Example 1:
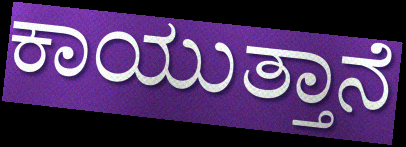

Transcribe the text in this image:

ಕಾಯುತ್ತಾನೆ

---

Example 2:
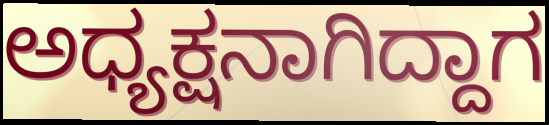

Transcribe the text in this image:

ಅಧ್ಯಕ್ಷನಾಗಿದ್ದಾಗ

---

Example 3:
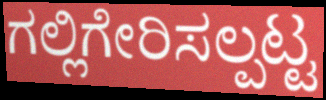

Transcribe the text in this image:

ಗಲ್ಲಿಗೇರಿಸಲ್ಪಟ್ಟ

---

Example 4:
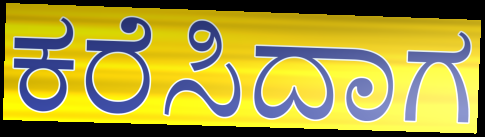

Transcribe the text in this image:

ಕರೆಸಿದಾಗ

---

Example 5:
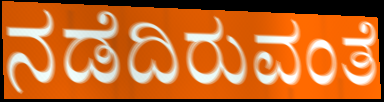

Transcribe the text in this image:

ನಡೆದಿರುವಂತೆ